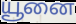
யூனை